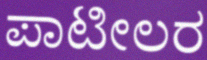
ಪಾಟೀಲರ